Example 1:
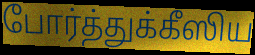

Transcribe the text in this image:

போர்த்துக்கீஸிய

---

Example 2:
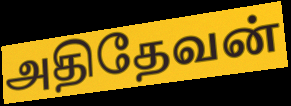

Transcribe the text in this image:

அதிதேவன்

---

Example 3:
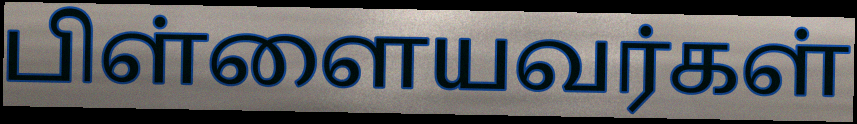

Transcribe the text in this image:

பிள்ளையவர்கள்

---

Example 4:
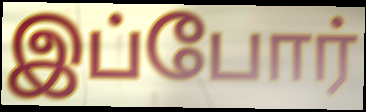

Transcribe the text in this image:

இப்போர்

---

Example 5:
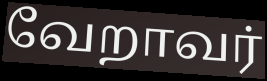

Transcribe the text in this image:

வேறாவர்